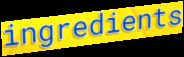
ingredients